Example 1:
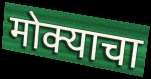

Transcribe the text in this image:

मोक्याचा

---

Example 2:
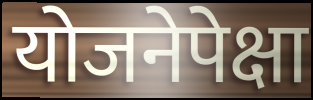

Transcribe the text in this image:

योजनेपेक्षा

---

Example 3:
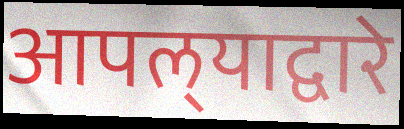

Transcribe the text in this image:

आपल्याद्वारे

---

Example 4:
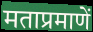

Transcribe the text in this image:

मताप्रमाणें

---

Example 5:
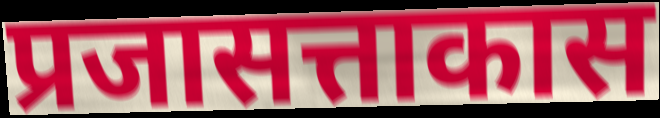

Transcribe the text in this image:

प्रजासत्ताकास